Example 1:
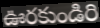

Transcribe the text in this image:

ఊరకుండిరి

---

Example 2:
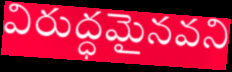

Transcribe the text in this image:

విరుద్ధమైనవని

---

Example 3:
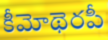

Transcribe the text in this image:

కీమోథెరపీ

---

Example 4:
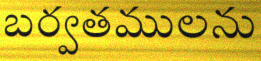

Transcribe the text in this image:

బర్వతములను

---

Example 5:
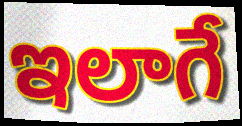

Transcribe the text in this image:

ఇలాగే